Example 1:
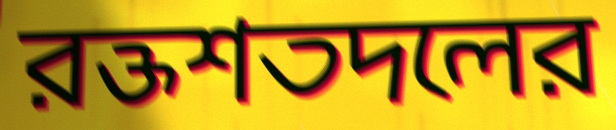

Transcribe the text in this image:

রক্তশতদলের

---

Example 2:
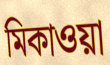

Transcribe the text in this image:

মিকাওয়া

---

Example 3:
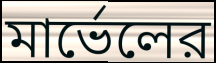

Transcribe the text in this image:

মার্ভেলের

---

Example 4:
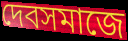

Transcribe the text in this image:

দেবসমাজে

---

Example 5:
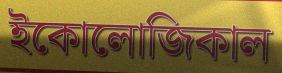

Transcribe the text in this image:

ইকোলোজিকাল